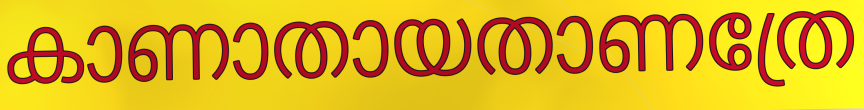
കാണാതായതാണത്രേ